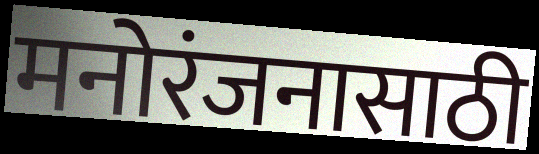
मनोरंजनासाठी